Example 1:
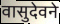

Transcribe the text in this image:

वासुदेवने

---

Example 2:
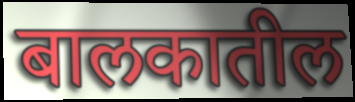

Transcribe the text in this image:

बालकातील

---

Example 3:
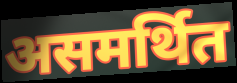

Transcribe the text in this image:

असमर्थित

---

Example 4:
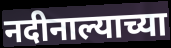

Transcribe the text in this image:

नदीनाल्याच्या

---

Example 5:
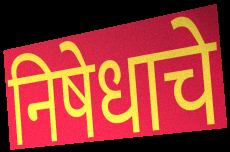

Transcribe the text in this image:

निषेधाचे